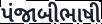
પંજાબીભાષી